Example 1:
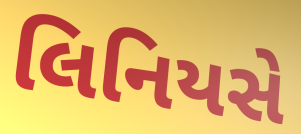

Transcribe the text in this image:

લિનિયસે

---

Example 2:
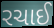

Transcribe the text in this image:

રચાઈ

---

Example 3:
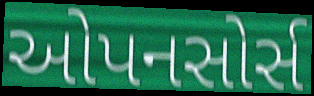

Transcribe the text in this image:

ઓપનસોર્સ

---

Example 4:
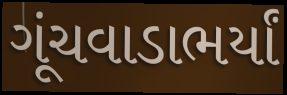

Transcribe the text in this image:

ગૂંચવાડાભર્યાં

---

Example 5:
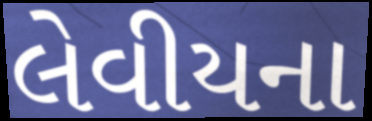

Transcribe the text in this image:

લેવીયના